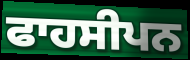
ਫਾਹਸੀਪਨ